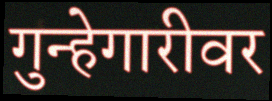
गुन्हेगारीवर